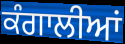
ਕੰਗਾਲੀਆਂ